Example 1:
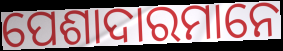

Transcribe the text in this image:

ପେଶାଦାରମାନେ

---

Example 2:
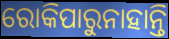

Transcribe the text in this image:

ରୋକିପାରୁନାହାନ୍ତି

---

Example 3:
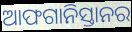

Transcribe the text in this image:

ଆଫଗାନିସ୍ତାନର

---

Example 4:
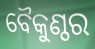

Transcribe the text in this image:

ବୈକୁଣ୍ଠର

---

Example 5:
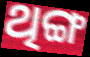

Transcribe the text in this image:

ଥିଙ୍ଗ